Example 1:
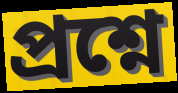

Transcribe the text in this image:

প্রশ্নে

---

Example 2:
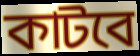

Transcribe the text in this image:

কাটবে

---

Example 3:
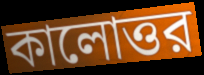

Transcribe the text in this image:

কালোত্তর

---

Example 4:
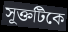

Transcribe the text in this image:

সূক্তটিকে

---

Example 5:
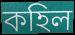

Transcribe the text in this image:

কহিল